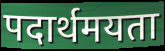
पदार्थमयता